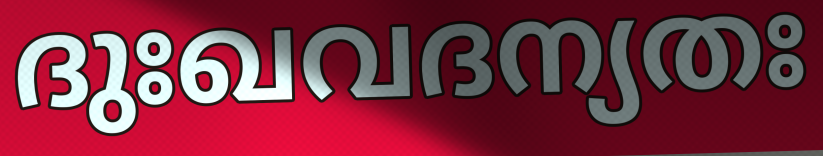
ദുഃഖവദന്യതഃ